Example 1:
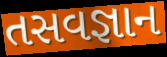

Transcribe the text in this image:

તસવજ્ઞાન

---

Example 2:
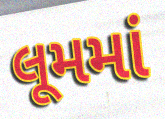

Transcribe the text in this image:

લૂમમાં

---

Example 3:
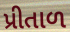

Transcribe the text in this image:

પ્રીતાળ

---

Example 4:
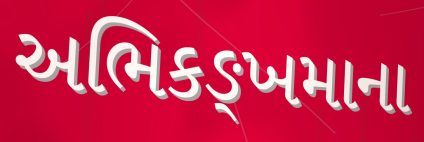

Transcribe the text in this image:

અભિકઙ્ખમાના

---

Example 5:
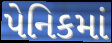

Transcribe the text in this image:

પેનિકમાં